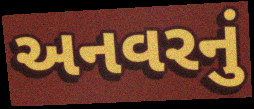
અનવરનું